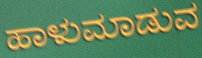
ಹಾಳುಮಾಡುವ